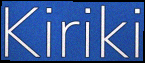
Kiriki